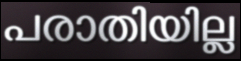
പരാതിയില്ല